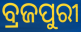
ବ୍ରଜପୁରୀ